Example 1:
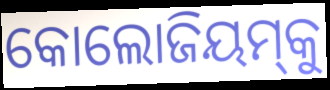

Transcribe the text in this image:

କୋଲୋଜିୟମ୍‍କୁ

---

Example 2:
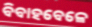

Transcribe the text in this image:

ବିବାହବେଳେ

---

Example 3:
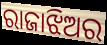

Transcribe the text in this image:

ରାଜାଝିଅର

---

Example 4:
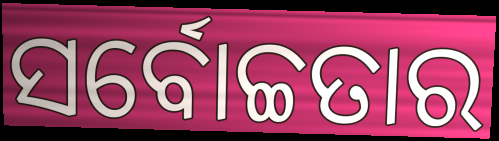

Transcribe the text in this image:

ସର୍ବୋଚ୍ଚତାର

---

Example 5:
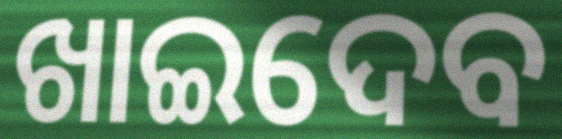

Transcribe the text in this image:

ଖାଇଦେବ